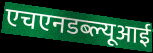
एचएनडब्ल्यूआई